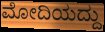
ಮೋದಿಯದ್ದು